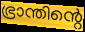
ഭ്രാന്തിന്റെ